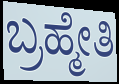
ಬ್ರಹ್ಮೇತಿ